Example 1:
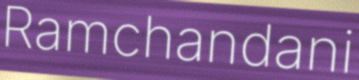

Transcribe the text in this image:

Ramchandani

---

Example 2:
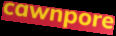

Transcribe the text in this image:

cawnpore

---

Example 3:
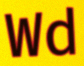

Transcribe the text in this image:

Wd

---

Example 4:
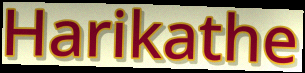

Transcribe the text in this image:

Harikathe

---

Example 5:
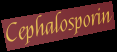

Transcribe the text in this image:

Cephalosporin